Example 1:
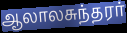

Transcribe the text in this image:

ஆலாலசுந்தரர்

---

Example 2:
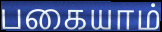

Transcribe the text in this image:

பகையாம்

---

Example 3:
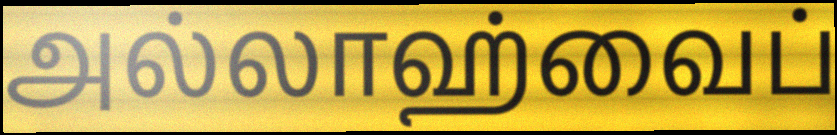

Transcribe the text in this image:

அல்லாஹ்வைப்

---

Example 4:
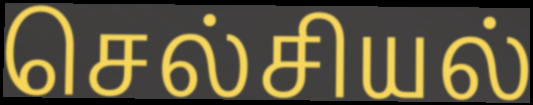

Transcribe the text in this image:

செல்சியல்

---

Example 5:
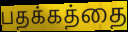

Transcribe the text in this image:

பதக்கத்தை